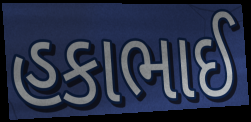
હકાભાઈ